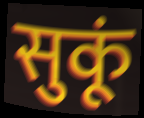
सुकूं